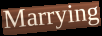
Marrying